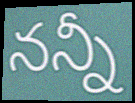
నన్నీ